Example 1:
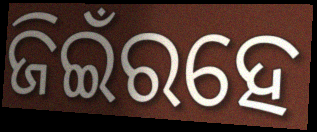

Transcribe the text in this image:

ଜିଇଁରହେ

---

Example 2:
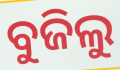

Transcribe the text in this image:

ବୁଜିଲୁ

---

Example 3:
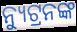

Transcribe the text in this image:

ନ୍ୟୁଟ୍ରନଙ୍କ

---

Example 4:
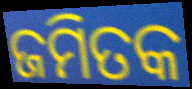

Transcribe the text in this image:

ଜମିତକ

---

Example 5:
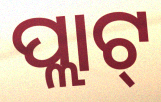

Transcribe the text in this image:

ପ୍ଲାଟ୍